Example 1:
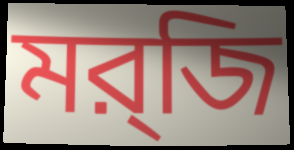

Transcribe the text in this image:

মর্‌জি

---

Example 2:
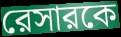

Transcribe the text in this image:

রেসারকে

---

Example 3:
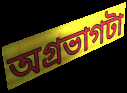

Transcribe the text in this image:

অগ্রভাগটা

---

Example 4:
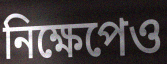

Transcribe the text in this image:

নিক্ষেপেও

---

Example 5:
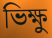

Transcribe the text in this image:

ভিক্ষু